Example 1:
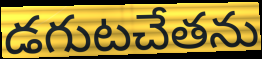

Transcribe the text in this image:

డగుటచేతను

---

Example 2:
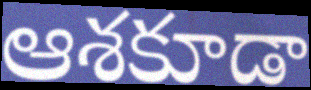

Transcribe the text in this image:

ఆశకూడా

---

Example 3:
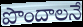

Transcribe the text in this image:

పొందాలనే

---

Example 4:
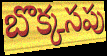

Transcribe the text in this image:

బొక్కసపు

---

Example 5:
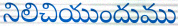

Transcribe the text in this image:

నిలిచియుందుము